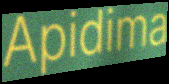
Apidima